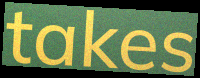
takes